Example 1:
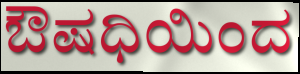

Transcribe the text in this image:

ಔಷಧಿಯಿಂದ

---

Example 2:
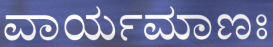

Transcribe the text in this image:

ವಾರ್ಯಮಾಣಃ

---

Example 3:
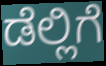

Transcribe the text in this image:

ಡೆಲ್ಲಿಗೆ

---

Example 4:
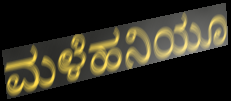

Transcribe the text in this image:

ಮಳೆಹನಿಯೂ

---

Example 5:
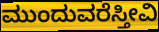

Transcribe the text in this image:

ಮುಂದುವರೆಸ್ತೀವಿ